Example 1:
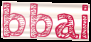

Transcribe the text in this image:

bbai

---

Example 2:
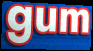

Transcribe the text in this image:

gum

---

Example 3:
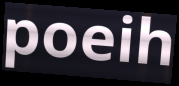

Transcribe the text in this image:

poeih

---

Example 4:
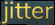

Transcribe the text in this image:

jitter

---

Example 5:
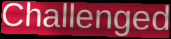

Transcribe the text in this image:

Challenged